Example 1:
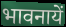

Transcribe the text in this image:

भावनायें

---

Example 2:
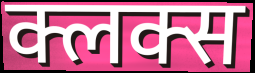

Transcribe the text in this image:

क्लक्स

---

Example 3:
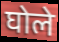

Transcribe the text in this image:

घोले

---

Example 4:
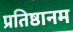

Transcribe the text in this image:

प्रतिष्ठानम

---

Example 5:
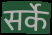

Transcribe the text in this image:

सर्के